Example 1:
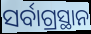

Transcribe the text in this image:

ସର୍ବାଗ୍ରସ୍ଥାନ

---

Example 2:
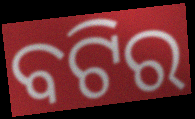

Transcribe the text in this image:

ବଟିର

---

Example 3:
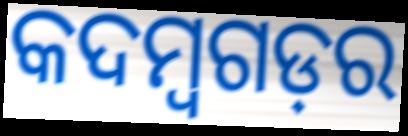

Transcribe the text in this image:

କଦମ୍ବଗଡ଼ର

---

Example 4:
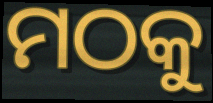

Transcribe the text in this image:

ମଠକୁ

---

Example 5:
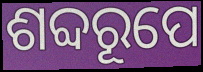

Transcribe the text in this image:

ଶବ୍ଦରୂପେ